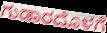
ಗುಡಾರದೊಳಗೆ